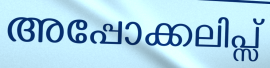
അപ്പോക്കലിപ്സ്